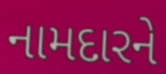
નામદારને